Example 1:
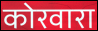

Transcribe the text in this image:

कोरवारा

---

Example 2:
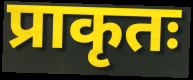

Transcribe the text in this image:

प्राकृतः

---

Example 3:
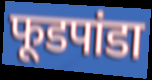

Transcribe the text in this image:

फूडपांडा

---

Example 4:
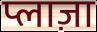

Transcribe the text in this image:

प्लाज़ा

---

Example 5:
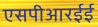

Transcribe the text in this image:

एसपीआरईई